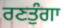
ਰਣਤੁੰਗਾ